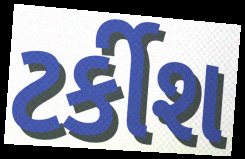
ટર્કીશ